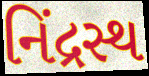
નિંદ્રસ્થ